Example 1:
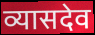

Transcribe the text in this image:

व्यासदेव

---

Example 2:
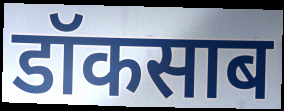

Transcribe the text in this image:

डॉकसाब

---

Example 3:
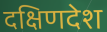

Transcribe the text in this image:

दक्षिणदेश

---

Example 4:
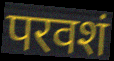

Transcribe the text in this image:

परवशं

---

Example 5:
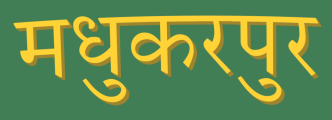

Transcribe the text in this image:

मधुकरपुर